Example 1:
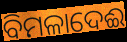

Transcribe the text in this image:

ବିମଳାଦେଈ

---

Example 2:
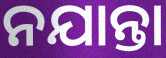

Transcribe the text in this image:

ନଯାନ୍ତା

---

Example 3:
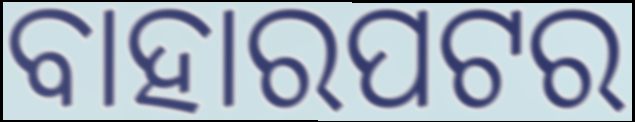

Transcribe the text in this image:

ବାହାରପଟର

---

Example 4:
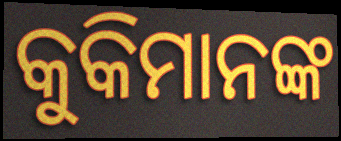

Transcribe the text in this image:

କୁକିମାନଙ୍କ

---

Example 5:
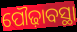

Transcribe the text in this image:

ପୌଢ଼ାବସ୍ଥା